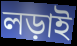
লড়াই